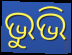
ଭୁଭି